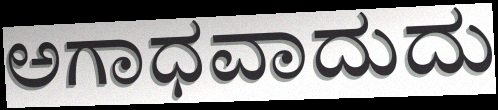
ಅಗಾಧವಾದುದು